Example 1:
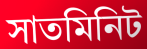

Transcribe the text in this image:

সাতমিনিট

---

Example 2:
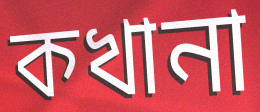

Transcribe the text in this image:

কখানা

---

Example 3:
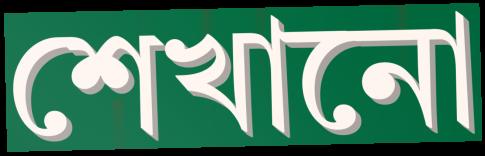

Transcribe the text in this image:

শেখানো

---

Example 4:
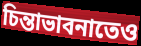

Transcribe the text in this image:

চিন্তাভাবনাতেও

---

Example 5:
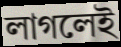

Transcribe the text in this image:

লাগলেই